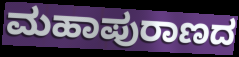
ಮಹಾಪುರಾಣದ